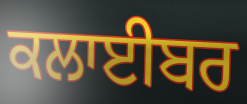
ਕਲਾਈਬਰ